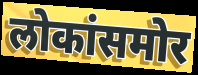
लोकांसमोर